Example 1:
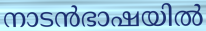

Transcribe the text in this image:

നാടൻഭാഷയിൽ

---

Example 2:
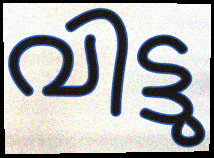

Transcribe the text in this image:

വിട്ടു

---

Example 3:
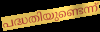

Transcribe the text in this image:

പദ്ധതിയുണ്ടെന്ന്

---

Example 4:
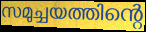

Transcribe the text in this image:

സമുച്ചയത്തിന്റെ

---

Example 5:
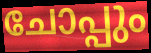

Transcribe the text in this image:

ചോപ്പും